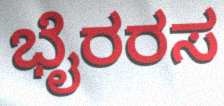
ಭೈರರಸ